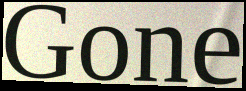
Gone